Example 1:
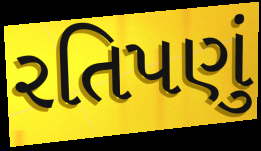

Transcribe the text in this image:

રતિપણું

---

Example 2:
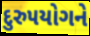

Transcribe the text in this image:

દુરુપયોગને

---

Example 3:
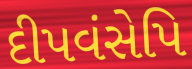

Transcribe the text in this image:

દીપવંસેપિ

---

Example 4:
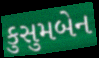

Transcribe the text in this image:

કુસુમબેન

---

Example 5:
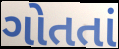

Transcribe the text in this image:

ગોતતાં